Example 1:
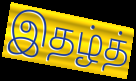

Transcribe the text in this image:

இதழ்த்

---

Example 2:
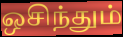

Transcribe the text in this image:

ஒசிந்தும்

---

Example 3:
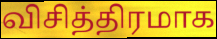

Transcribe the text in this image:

விசித்திரமாக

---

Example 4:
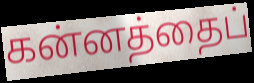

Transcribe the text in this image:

கன்னத்தைப்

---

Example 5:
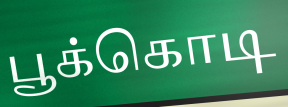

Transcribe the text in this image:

பூக்கொடி